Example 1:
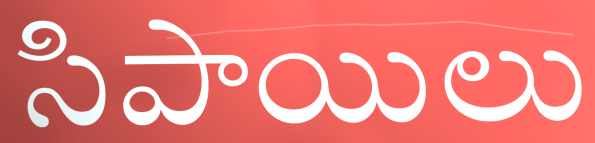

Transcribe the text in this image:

సిపాయిలు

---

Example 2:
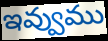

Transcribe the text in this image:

ఇవ్వుము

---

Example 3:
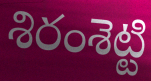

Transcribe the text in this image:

శిరంశెట్టి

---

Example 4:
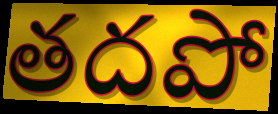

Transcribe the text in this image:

తదపో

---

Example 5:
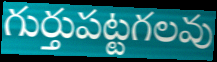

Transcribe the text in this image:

గుర్తుపట్టగలవు